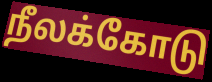
நீலக்கோடு